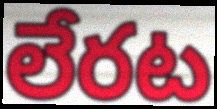
లేరట